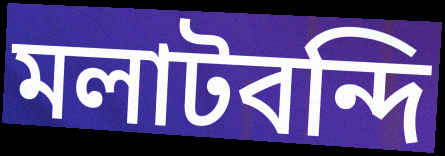
মলাটবন্দি